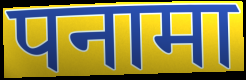
पनामा